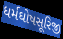
ધર્મઘોષસૂરિજી